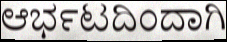
ಆರ್ಭಟದಿಂದಾಗಿ